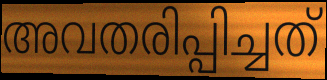
അവതരിപ്പിച്ചത്